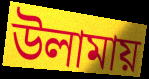
উলামায়